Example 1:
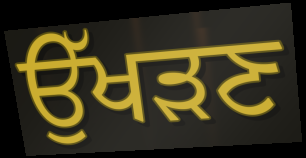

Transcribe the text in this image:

ਉੱਖੜਣ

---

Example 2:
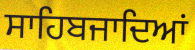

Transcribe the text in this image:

ਸਾਹਿਬਜਾਦਿਆਂ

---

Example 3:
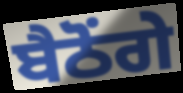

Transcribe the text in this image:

ਬੈਠੋਂਗੇ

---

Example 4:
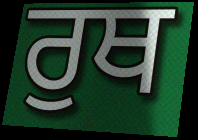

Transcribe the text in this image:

ਰੁਥ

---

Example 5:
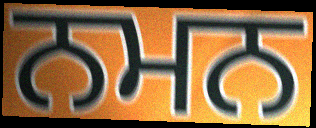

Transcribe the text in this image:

ਨਮਨ